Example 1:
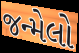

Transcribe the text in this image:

જન્મેલો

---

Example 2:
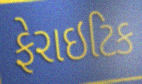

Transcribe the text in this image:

ફેરાઇટિક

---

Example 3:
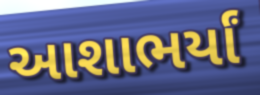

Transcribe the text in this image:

આશાભર્યાં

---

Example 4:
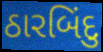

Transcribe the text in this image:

ઠારબિંદુ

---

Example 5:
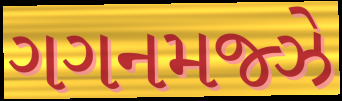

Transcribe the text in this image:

ગગનમજ્ઝે